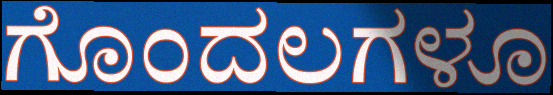
ಗೊಂದಲಗಳೂ